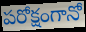
పరోక్షంగానో